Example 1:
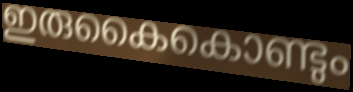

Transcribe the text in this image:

ഇരുകൈകൊണ്ടും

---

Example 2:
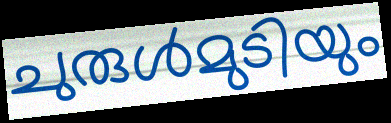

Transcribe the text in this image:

ചുരുൾമുടിയും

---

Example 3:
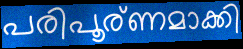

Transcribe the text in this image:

പരിപൂര്ണമാക്കി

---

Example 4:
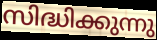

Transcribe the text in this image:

സിദ്ധിക്കുന്നു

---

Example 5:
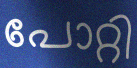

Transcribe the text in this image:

പോറ്റി